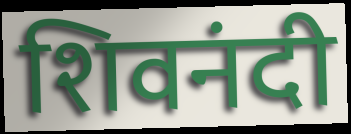
शिवनंदी